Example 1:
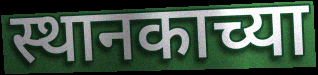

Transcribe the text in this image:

स्थानकाच्या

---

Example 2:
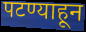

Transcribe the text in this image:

पटण्याहून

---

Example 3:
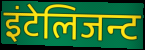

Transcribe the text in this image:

इंटेलिजन्ट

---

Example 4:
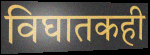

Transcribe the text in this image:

विघातकही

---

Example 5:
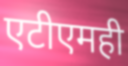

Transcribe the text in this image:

एटीएमही